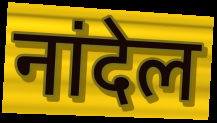
नांदेल